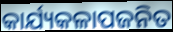
କାର୍ଯ୍ୟକଳାପଜନିତ